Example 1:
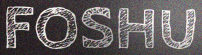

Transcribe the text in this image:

FOSHU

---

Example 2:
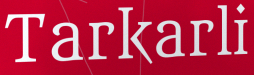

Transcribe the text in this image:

Tarkarli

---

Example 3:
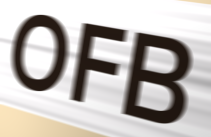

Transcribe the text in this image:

OFB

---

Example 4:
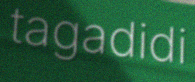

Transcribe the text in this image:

tagadidi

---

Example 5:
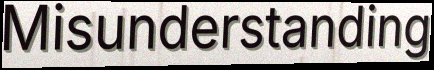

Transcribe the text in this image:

Misunderstanding